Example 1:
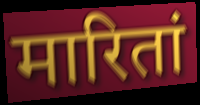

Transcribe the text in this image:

मारितां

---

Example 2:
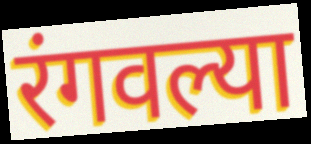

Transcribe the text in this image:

रंगवल्या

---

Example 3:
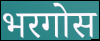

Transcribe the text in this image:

भरगोस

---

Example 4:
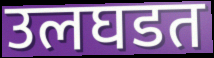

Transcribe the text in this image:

उलघडत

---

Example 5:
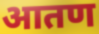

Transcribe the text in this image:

आतण